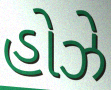
હોઝે